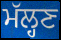
ਮੱਲ੍ਹਣ